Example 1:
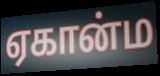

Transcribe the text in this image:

ஏகான்ம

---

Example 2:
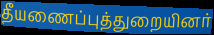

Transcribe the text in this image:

தீயணைப்புத்துறையினர்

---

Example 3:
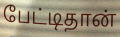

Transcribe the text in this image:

பேட்டிதான்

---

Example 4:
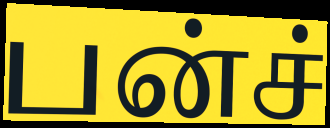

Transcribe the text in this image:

பன்ச்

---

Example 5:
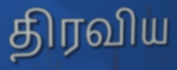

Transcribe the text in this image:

திரவிய